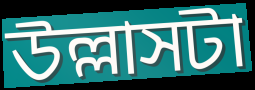
উল্লাসটা